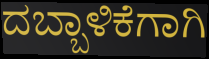
ದಬ್ಬಾಳಿಕೆಗಾಗಿ